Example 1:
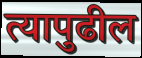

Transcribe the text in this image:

त्यापुढील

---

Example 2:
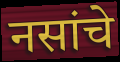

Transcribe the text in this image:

नसांचे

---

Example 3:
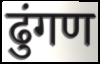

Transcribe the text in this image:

ढुंगण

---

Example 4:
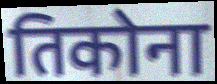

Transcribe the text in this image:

तिकोना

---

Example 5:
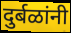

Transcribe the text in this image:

दुर्बळांनी